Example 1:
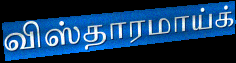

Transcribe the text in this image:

விஸ்தாரமாய்க்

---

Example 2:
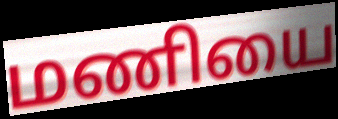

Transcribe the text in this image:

மணியை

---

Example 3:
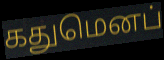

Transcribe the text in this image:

கதுமெனப்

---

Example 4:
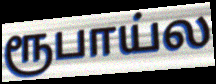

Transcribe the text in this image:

ரூபாய்ல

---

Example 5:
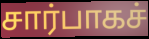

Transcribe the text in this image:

சார்பாகச்